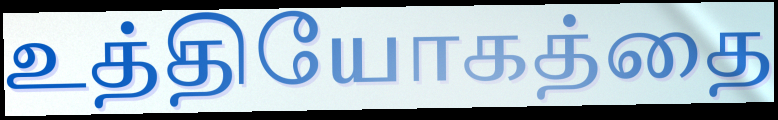
உத்தியோகத்தை